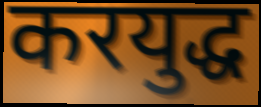
करयुद्ध